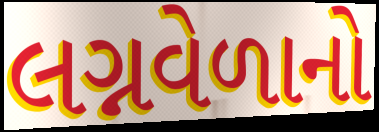
લગ્નવેળાનો